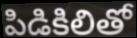
పిడికిలితో